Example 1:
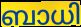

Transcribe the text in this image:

ബാധി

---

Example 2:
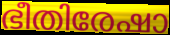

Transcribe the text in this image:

ഭീതിരേഷാ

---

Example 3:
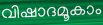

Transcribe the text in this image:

വിഷാദമൂകാം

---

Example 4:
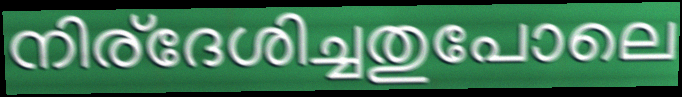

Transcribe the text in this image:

നിര്ദേശിച്ചതുപോലെ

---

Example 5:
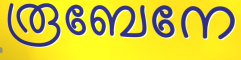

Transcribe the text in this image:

രൂബേനേ